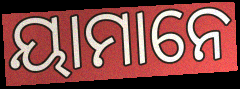
ୟାମାନେ